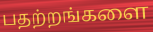
பதற்றங்களை